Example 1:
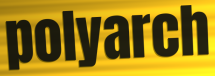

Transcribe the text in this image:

polyarch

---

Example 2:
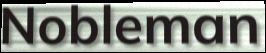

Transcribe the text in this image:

Nobleman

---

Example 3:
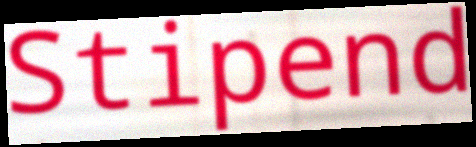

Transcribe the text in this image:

Stipend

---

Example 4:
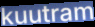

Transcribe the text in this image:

kuutram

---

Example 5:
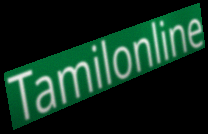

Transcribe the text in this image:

Tamilonline